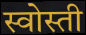
स्वोस्ती